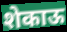
शेकाऊ